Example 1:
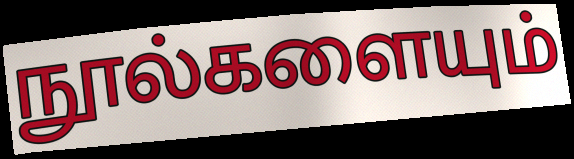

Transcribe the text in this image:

நூல்களையும்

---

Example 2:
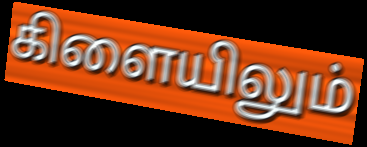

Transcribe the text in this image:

கிளையிலும்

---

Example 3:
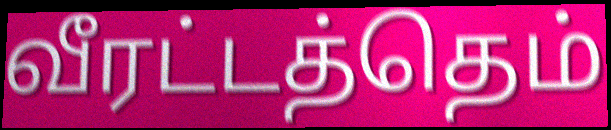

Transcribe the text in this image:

வீரட்டத்தெம்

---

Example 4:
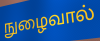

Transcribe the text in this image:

நுழைவால்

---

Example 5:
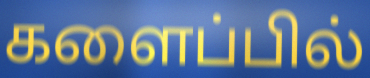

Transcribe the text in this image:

களைப்பில்